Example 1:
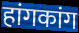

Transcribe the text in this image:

हांगकांग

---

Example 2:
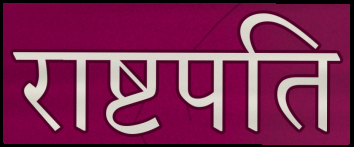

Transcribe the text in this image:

राष्टपति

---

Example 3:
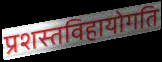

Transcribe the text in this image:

प्रशस्तविहायोगति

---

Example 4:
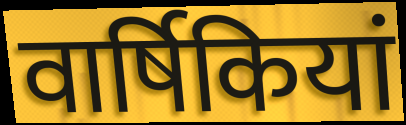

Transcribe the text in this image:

वार्षिकियां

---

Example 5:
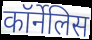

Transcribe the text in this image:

कॉर्नेलिस